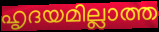
ഹൃദയമില്ലാത്ത